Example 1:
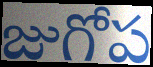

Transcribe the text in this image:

జుగోప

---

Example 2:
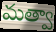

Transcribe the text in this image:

మత్వా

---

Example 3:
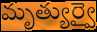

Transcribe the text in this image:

మృత్యుర్వై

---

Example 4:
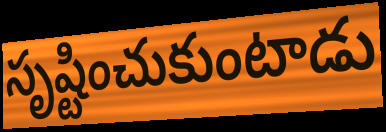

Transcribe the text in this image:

సృష్టించుకుంటాడు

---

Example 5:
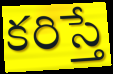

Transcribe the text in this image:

కరిస్తే